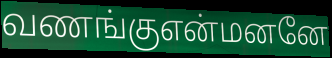
வணங்குஎன்மனனே